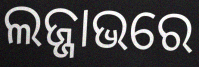
ଲଜ୍ଜାଭରେ